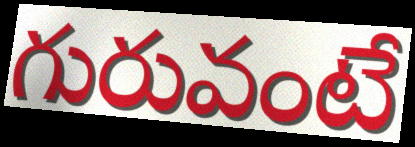
గురువంటే